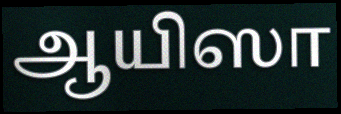
ஆயிஸா